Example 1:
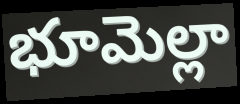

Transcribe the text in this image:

భూమెల్లా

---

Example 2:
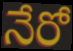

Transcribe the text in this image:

నేరో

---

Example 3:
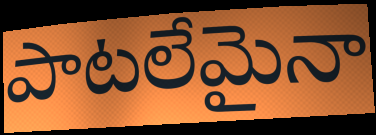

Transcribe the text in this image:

పాటలేమైనా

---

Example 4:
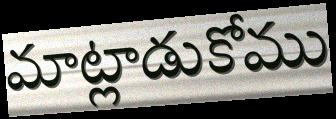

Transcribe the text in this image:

మాట్లాడుకోము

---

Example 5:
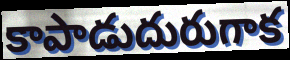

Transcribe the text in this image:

కాపాడుదురుగాక